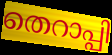
തെറാപ്പി